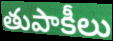
తుపాకీలు